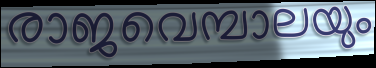
രാജവെമ്പാലയും